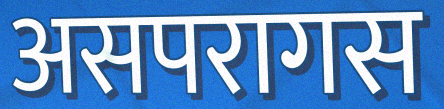
असपरागस